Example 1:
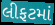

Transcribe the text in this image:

લીફટમાં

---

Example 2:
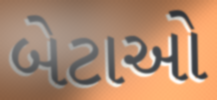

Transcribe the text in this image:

બેટાઓ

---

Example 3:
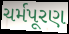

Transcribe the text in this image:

ચર્મપૂરણ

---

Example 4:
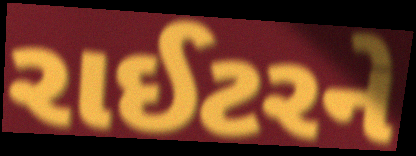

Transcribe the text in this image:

રાઈટરને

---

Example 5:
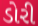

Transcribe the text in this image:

ડોરી